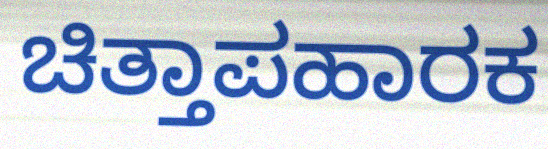
ಚಿತ್ತಾಪಹಾರಕ